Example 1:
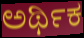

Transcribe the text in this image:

ಅರ್ಥಿಕ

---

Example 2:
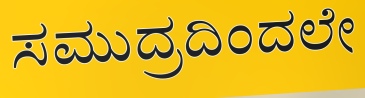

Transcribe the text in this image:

ಸಮುದ್ರದಿಂದಲೇ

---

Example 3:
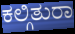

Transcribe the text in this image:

ಕಲ್ಗಿತುರಾ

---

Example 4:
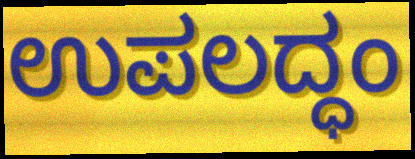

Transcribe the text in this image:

ಉಪಲದ್ಧಂ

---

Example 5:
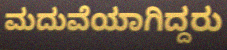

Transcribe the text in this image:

ಮದುವೆಯಾಗಿದ್ದರು